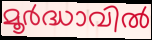
മൂർദ്ധാവിൽ